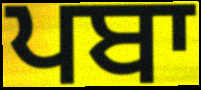
ਪਬਾ